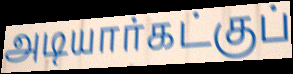
அடியார்கட்குப்